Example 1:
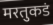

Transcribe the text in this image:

मरतुकडं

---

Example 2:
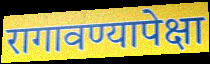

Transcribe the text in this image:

रागावण्यापेक्षा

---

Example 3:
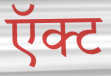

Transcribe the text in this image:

ऍक्ट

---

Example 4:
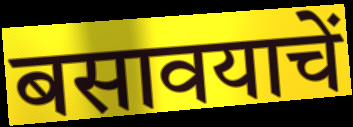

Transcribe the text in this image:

बसावयाचें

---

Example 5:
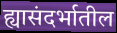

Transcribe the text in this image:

ह्यासंदर्भातील